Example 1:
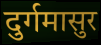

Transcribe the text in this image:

दुर्गमासुर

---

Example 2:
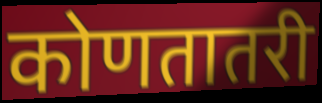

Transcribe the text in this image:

कोणतातरी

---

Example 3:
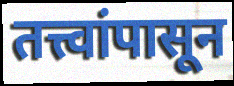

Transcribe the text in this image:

तत्त्वांपासून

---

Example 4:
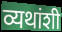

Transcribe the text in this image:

व्यथांशी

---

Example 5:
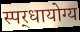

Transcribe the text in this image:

स्पर्धायोग्य